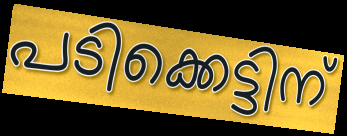
പടിക്കെട്ടിന്